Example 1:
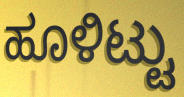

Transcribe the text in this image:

ಹೂಳಿಟ್ಟು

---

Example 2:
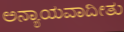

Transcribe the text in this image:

ಅನ್ಯಾಯವಾದೀತು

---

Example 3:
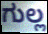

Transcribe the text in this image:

ಗುಲ್ಲ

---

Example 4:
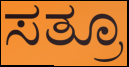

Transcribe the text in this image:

ಸತ್ರೂ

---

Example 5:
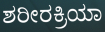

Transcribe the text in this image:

ಶರೀರಕ್ರಿಯಾ